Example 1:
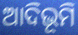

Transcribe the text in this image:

ଆଦିଭୂମି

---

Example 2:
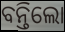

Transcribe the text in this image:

ବନ୍ତିଲୋ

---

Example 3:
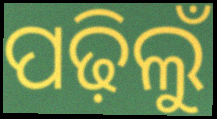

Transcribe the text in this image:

ପଢ଼ିଲୁଁ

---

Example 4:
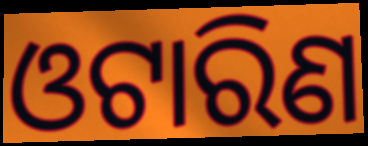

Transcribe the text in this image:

ଓଟାରିଣ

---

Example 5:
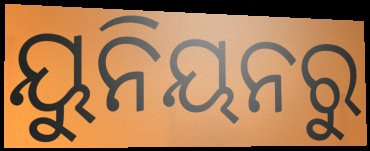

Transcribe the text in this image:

ୟୁନିୟନରୁ